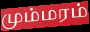
மும்மரம்